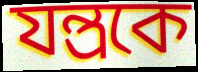
যন্ত্রকে